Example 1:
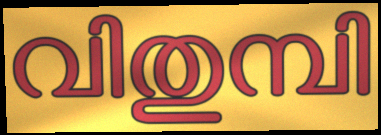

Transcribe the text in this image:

വിതുമ്പി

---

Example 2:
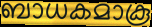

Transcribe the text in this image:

ബാധകമാകൂ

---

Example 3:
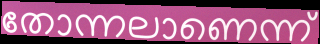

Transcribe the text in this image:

തോന്നലാണെന്ന്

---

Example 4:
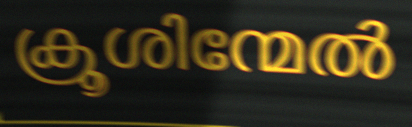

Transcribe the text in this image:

ക്രൂശിന്മേൽ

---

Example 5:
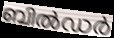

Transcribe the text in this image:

ബിൽഡർ